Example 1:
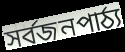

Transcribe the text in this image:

সর্বজনপাঠ্য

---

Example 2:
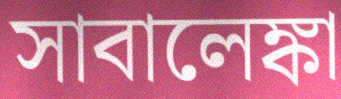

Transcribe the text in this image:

সাবালেঙ্কা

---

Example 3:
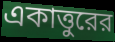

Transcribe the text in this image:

একাত্তুরের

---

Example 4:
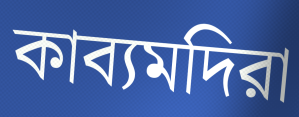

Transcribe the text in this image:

কাব্যমদিরা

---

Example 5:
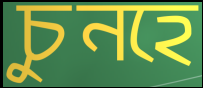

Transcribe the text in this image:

চুনহে